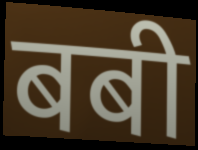
बबी